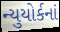
ન્યુયોર્કનાં